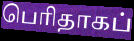
பெரிதாகப்